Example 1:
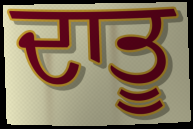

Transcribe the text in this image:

ਦਾਤੂ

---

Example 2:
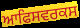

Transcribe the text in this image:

ਆਫਿਸਵਰਕਸ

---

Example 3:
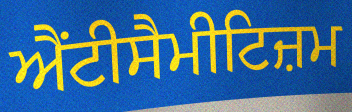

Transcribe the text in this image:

ਐਂਟੀਸੈਮੀਟਿਜ਼ਮ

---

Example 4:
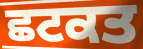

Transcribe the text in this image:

ਛਟਕਤ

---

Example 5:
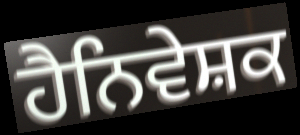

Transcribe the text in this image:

ਹੈਨਿਵੇਸ਼ਕ